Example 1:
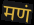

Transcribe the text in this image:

मणं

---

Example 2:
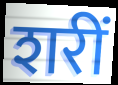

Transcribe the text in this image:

शरीं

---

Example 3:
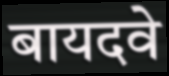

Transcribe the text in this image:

बायदवे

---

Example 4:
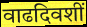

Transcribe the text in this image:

वाढदिवशीं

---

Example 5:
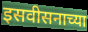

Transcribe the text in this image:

इसवीसनाच्या